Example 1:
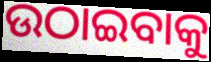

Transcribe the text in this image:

ଉଠାଇବାକୁ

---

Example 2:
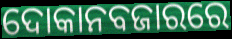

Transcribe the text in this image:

ଦୋକାନବଜାରରେ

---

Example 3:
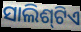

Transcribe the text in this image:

ସାଲିଶ୍‌ଟିଏ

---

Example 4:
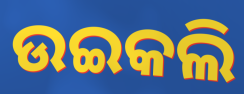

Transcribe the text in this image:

ଉଇକଲି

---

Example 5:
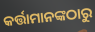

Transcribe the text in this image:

କର୍ତ୍ତାମାନଙ୍କଠାରୁ